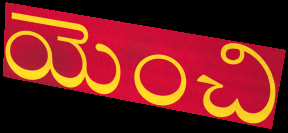
యెంచి